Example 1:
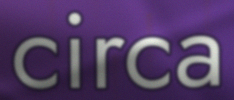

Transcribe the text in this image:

circa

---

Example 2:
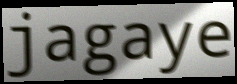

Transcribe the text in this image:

jagaye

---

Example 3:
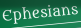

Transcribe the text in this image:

Ephesians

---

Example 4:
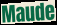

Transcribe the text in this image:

Maude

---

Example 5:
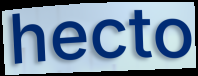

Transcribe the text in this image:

hecto